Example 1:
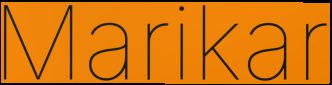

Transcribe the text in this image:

Marikar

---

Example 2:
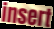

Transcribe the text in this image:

insert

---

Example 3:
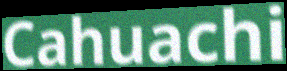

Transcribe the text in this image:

Cahuachi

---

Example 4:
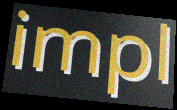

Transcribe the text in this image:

impl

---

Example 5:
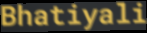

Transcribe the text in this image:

Bhatiyali